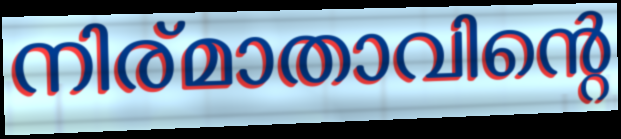
നിര്മാതാവിന്റെ